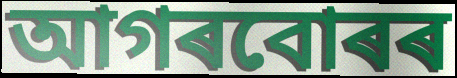
আগৰবোৰৰ